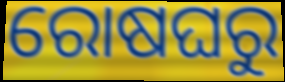
ରୋଷଘରୁ